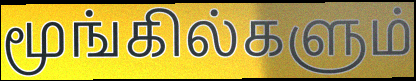
மூங்கில்களும்